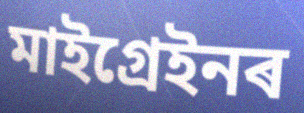
মাইগ্ৰেইনৰ